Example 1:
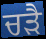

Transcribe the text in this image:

ਚੜੈ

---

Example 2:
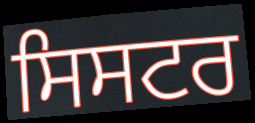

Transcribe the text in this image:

ਸਿਸਟਰ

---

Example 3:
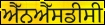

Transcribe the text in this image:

ਐੱਨਐੱਸਡੀਸੀ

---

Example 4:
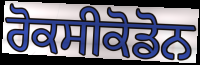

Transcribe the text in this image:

ਰੋਕਸੀਕੋਡੋਨ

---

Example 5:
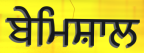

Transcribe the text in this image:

ਬੇਮਿਸ਼ਾਲ